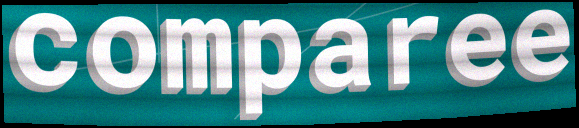
comparee